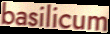
basilicum